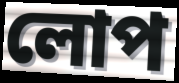
লোপ